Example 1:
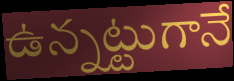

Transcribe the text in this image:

ఉన్నట్టుగానే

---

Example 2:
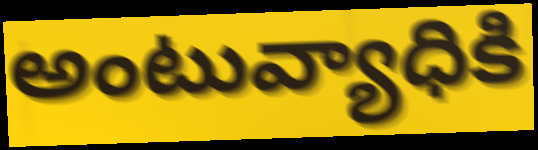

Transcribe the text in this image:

అంటువ్యాధికి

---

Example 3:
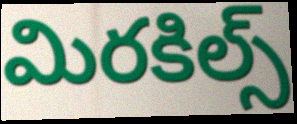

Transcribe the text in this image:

మిరకిల్స్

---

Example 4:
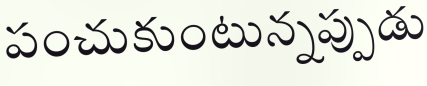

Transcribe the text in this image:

పంచుకుంటున్నప్పుడు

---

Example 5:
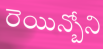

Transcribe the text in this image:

రెయిన్బోని